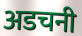
अडचनी